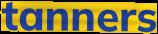
tanners